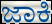
ಜಾಕಿ